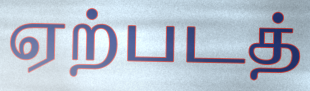
ஏற்படத்